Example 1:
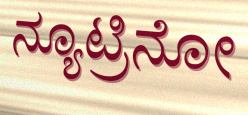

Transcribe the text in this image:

ನ್ಯೂಟ್ರಿನೋ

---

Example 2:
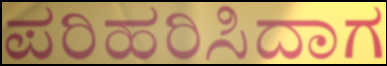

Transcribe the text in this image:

ಪರಿಹರಿಸಿದಾಗ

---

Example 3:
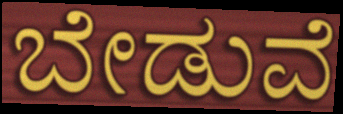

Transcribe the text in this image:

ಬೇಡುವೆ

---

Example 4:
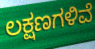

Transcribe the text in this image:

ಲಕ್ಷಣಗಳಿವೆ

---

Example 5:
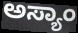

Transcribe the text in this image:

ಅಸ್ಯಾಂ